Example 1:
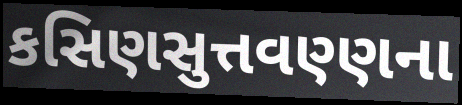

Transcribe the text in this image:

કસિણસુત્તવણ્ણના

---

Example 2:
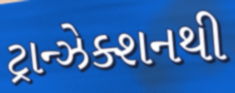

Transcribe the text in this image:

ટ્રાન્ઝેક્શનથી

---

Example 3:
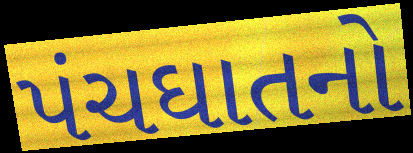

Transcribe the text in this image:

પંચઘાતનો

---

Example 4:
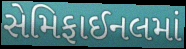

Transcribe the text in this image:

સેમિફાઈનલમાં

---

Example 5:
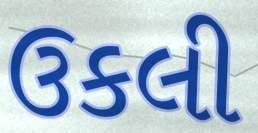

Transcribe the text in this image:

ઉકલી